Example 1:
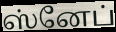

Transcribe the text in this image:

ஸ்னேப்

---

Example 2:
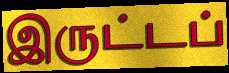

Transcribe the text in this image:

இருட்டப்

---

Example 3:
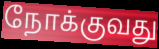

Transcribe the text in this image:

நோக்குவது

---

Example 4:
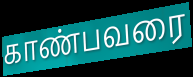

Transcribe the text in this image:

காண்பவரை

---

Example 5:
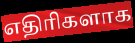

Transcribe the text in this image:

எதிரிகளாக